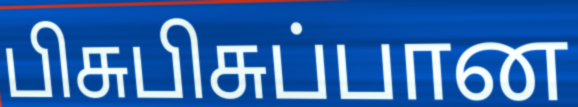
பிசுபிசுப்பான